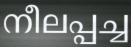
നീലപ്പച്ച